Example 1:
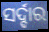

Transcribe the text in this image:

ସର୍ଦ୍ଦାର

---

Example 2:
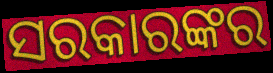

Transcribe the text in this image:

ସରକାରଙ୍କର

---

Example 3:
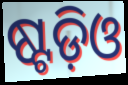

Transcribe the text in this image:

ଷ୍ଟଡ଼ିଓ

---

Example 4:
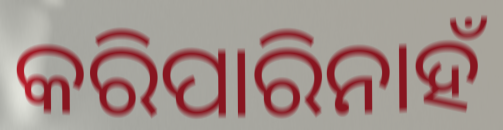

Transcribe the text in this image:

କରିପାରିନାହଁ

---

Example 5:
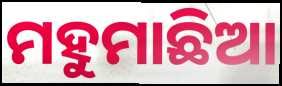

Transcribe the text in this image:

ମହୁମାଛିଆ